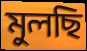
মুলছি